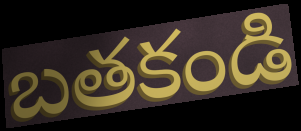
బతకండి